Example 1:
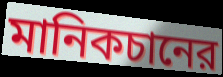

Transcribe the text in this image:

মানিকচানের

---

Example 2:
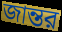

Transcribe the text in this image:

জান্তর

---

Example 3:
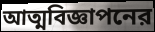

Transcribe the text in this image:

আত্মবিজ্ঞাপনের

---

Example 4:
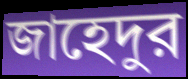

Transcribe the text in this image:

জাহেদুর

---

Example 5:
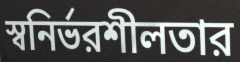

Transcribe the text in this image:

স্বনির্ভরশীলতার